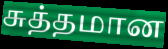
சுத்தமான